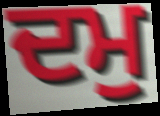
ਦਮੁ